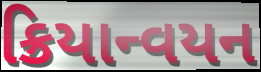
ક્રિયાન્વયન